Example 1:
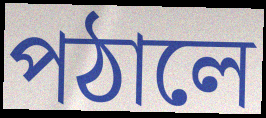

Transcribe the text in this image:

পঠালে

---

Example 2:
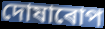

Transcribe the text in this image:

দোষাৰোপ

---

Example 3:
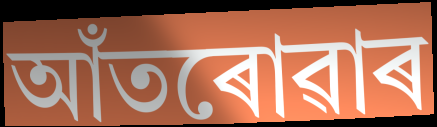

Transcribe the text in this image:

আঁতৰোৱাৰ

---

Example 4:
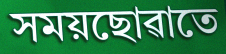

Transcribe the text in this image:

সময়ছোৱাতে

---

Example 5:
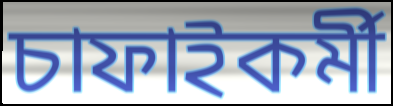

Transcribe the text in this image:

চাফাইকৰ্মী